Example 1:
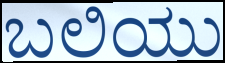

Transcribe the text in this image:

ಬಲಿಯು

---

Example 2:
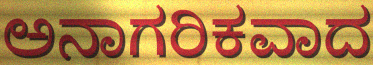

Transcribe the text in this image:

ಅನಾಗರಿಕವಾದ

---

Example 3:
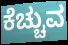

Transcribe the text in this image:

ಕೆಚ್ಚುವ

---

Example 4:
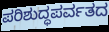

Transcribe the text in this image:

ಪರಿಶುದ್ಧಪರ್ವತದ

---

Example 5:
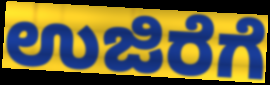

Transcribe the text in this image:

ಉಜಿರೆಗೆ